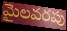
మైలవరపు